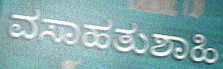
ವಸಾಹತುಶಾಹಿ